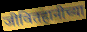
जीवितहानीच्या